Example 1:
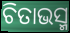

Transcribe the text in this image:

ଚିତାଭସ୍ମ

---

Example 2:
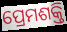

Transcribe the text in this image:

ପ୍ରେମଶକ୍ତି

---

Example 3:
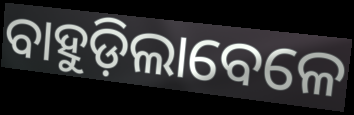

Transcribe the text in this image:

ବାହୁଡ଼ିଲାବେଳେ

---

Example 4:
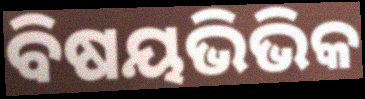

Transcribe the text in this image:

ବିଷୟଭିଭିକ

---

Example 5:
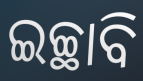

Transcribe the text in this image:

ଇଚ୍ଛାବି